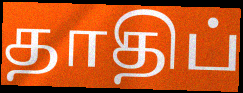
தாதிப்